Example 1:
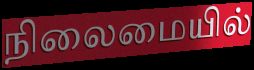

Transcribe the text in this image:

நிலைமையில்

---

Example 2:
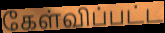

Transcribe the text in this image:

கேள்விப்பட்ட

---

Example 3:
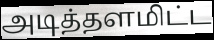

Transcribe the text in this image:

அடித்தளமிட்ட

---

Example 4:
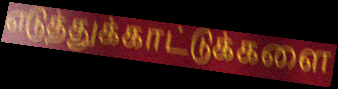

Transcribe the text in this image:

எடுத்துக்காட்டுக்களை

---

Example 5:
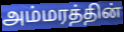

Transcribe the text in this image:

அம்மரத்தின்